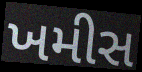
ખમીસ